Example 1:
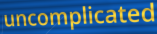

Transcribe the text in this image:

uncomplicated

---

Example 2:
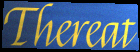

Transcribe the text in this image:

Thereat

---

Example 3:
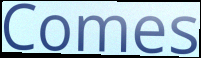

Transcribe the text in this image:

Comes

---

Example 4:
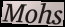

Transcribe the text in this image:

Mohs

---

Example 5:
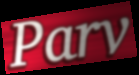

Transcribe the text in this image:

Parv